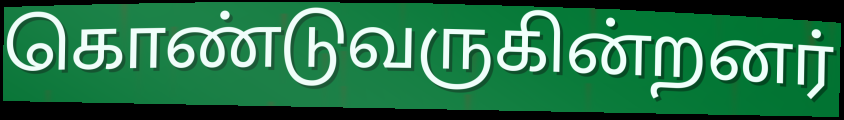
கொண்டுவருகின்றனர்